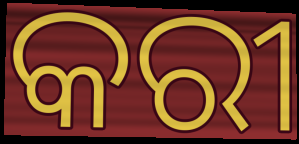
କରୀ